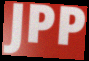
JPP